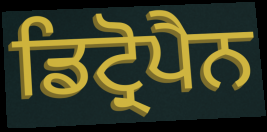
ਡਿਟ੍ਰੋਪੈਨ